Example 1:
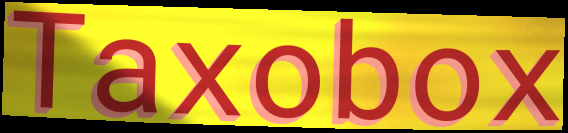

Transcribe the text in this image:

Taxobox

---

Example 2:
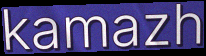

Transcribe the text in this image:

kamazh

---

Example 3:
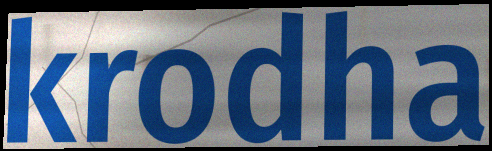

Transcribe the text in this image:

krodha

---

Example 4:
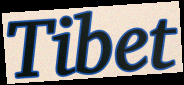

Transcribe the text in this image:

Tibet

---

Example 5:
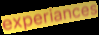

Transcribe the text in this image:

experiances